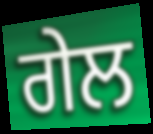
ਗੇਲ